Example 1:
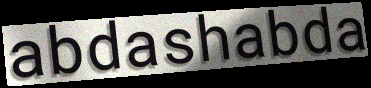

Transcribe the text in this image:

abdashabda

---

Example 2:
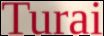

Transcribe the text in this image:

Turai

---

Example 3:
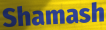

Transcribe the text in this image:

Shamash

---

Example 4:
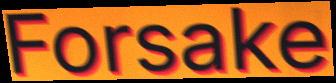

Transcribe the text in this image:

Forsake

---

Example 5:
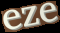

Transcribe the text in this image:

eze